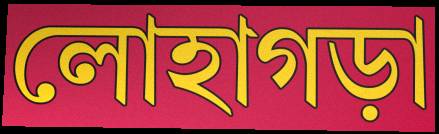
লোহাগড়া